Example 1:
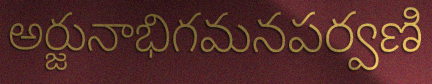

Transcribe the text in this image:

అర్జునాభిగమనపర్వణి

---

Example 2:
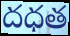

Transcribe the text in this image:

దధత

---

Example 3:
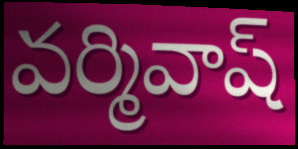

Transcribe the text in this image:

వర్మివాష్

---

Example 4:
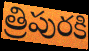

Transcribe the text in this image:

త్రిపురకి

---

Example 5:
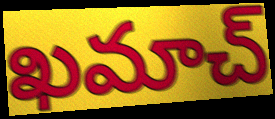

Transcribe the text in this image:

ఖమాచ్